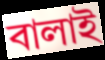
বালাই